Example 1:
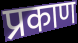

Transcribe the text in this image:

प्रकाण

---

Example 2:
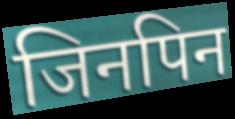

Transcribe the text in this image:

जिनपिन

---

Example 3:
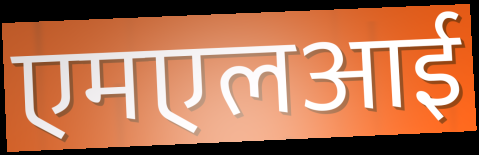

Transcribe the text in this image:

एमएलआई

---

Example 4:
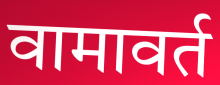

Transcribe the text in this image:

वामावर्त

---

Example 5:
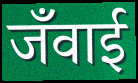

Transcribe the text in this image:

जँवाई